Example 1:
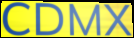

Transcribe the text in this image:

CDMX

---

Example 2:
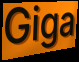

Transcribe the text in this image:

Giga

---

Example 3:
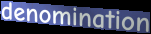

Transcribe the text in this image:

denomination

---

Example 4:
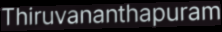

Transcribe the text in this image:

Thiruvananthapuram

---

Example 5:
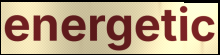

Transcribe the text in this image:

energetic